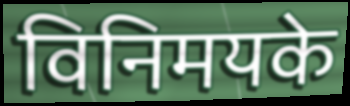
विनिमयके